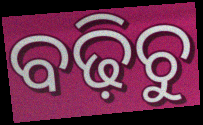
ବଢ଼ିଚୁ